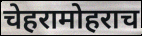
चेहरामोहराच